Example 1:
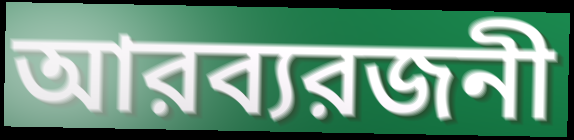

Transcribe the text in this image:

আরব্যরজনী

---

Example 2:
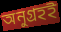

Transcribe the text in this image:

অনুগ্রহই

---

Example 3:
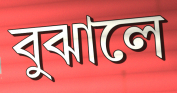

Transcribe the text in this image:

বুঝালে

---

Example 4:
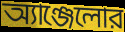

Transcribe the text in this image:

অ্যাঞ্জেলোর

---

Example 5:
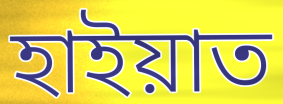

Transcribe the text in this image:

হাইয়াত